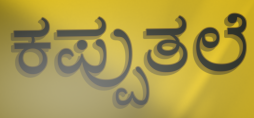
ಕಪ್ಪುತಲೆ